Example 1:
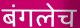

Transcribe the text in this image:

बंगलेच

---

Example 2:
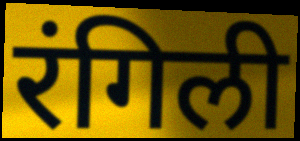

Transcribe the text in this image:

रंगिली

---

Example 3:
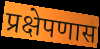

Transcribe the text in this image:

प्रक्षेपणास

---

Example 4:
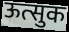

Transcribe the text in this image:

ऊत्सुक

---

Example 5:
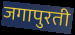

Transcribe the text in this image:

जगापुरती